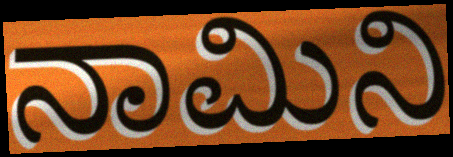
ನಾಮಿನಿ